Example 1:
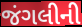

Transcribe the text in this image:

જંગલીની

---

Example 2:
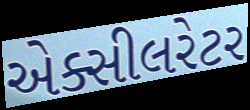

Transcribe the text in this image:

એક્સીલરેટર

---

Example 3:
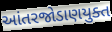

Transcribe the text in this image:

આંતરજોડાણયુક્ત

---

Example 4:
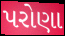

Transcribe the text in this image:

પરોણા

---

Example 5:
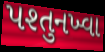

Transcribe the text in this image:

પશ્તુનખ્વા